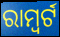
ରାମ୍ବର୍ଟ